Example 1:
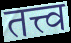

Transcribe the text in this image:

तत्त्व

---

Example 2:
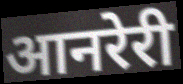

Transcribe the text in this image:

आनरेरी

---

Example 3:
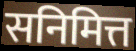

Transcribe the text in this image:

सनिमित्त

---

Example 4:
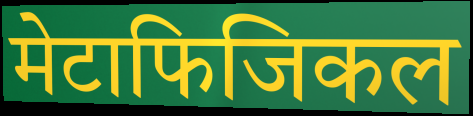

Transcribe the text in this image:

मेटाफिजिकल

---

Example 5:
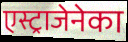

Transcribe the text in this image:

एस्ट्राजेनेका